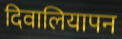
दिवालियापन